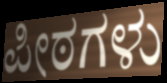
ಪೀಠಗಳು